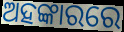
ଅହଙ୍କାରରେ